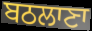
ਬਠਲਾਣਾ